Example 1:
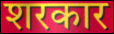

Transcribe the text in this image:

शरकार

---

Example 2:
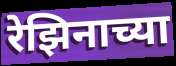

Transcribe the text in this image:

रेझिनाच्या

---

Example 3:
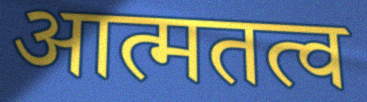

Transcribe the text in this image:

आत्मतत्व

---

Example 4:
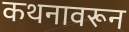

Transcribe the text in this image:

कथनावरून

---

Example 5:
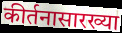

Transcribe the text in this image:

कीर्तनासारख्या